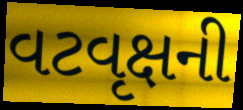
વટવૃક્ષની